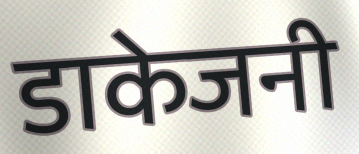
डाकेजनी